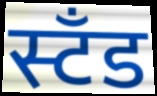
स्टॅंड